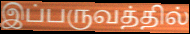
இப்பருவத்தில்